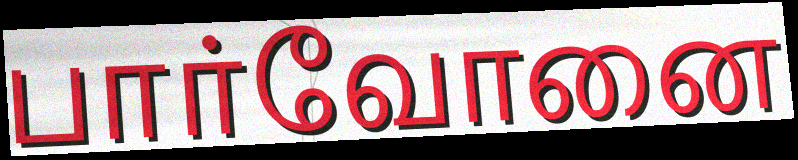
பார்வோனை